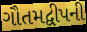
ગૌતમદ્વીપની